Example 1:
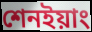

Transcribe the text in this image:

শেনইয়াং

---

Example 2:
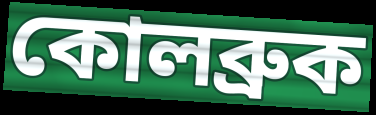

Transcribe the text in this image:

কোলব্রুক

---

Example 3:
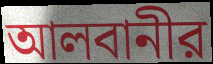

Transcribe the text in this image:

আলবানীর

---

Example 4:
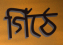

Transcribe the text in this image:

গিঁঠে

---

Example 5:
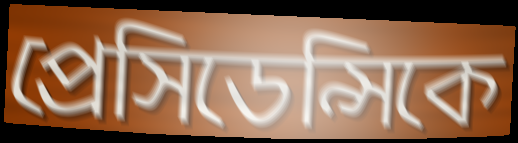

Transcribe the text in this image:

প্রেসিডেন্সিকে